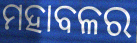
ମହାବଳର